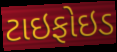
ટાઇફોઇડ